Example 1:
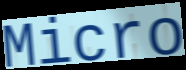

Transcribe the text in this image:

Micro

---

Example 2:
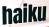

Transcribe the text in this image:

haiku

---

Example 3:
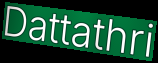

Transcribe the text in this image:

Dattathri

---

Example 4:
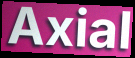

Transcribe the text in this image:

Axial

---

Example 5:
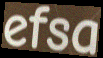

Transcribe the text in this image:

efsa